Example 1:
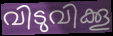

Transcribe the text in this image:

വിടുവിക്കൂ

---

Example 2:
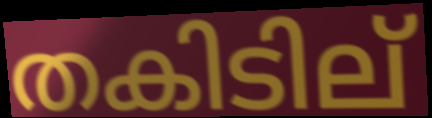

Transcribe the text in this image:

തകിടില്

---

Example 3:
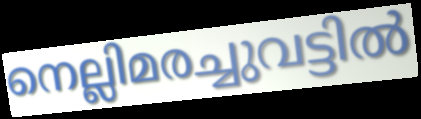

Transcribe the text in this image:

നെല്ലിമരച്ചുവട്ടിൽ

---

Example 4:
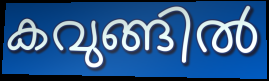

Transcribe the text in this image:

കവുങ്ങിൽ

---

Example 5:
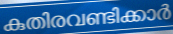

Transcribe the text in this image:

കുതിരവണ്ടിക്കാർ